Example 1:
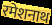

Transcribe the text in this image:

रमेशनाथ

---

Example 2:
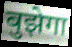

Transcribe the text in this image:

बुझेगा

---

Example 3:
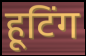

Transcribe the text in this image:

हूटिंग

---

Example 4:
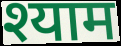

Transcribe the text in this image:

श्याम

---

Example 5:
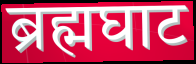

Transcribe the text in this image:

ब्रह्मघाट